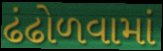
ઢંઢોળવામાં